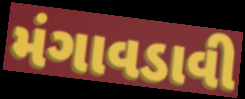
મંગાવડાવી